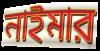
নাইমার